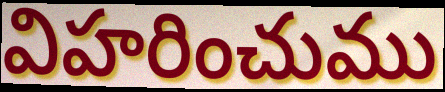
విహరించుము